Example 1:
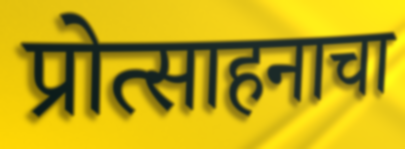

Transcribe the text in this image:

प्रोत्साहनाचा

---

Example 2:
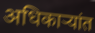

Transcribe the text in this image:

अधिकाऱ्यांत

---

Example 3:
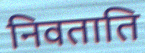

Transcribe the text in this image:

निवताति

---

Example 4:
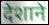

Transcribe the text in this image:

देशाने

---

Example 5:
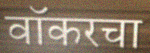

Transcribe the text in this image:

वॉकरचा